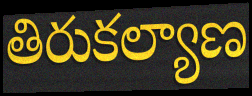
తిరుకల్యాణ